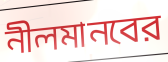
নীলমানবের